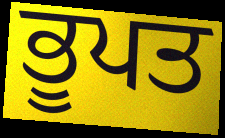
ਭੂਪਤ